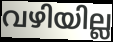
വഴിയില്ല